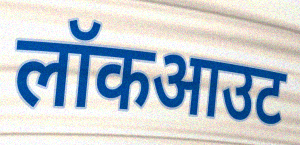
लॉकआउट